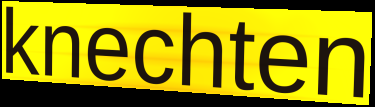
knechten